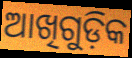
ଆଖିଗୁଡ଼ିକ